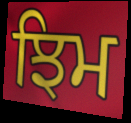
ਝਿਮ